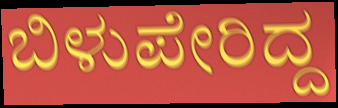
ಬಿಳುಪೇರಿದ್ದ